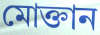
মোক্তান